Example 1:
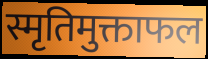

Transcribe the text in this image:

स्मृतिमुक्ताफल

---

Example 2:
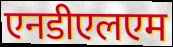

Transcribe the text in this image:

एनडीएलएम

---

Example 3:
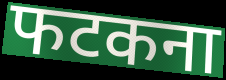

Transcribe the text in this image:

फटकना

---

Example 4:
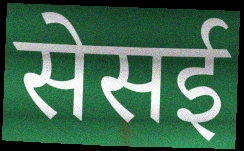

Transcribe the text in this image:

सेसई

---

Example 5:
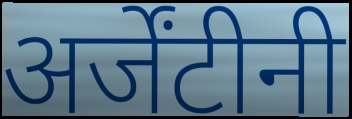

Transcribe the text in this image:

अर्जेंटीनी